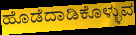
ಹೊಡೆದಾಡಿಕೊಳ್ಳುವ